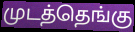
முடத்தெங்கு